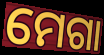
ମେଗା